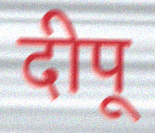
दीपू